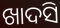
ଖାଦସି